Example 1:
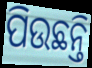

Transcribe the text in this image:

ପିଉଛନ୍ତି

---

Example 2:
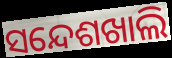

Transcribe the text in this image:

ସନ୍ଦେଶଖାଲି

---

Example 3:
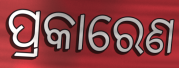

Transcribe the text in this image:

ପ୍ରକାରେଣ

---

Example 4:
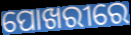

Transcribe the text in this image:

ପୋଖରୀରେ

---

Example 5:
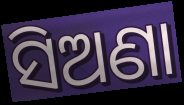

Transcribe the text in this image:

ସିଅଣା